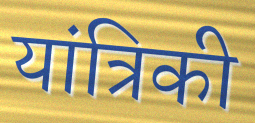
यांत्रिकी